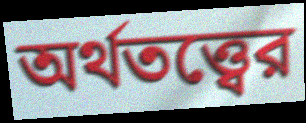
অর্থতত্ত্বের